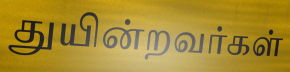
துயின்றவர்கள்